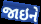
જાઇને